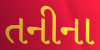
તનીના